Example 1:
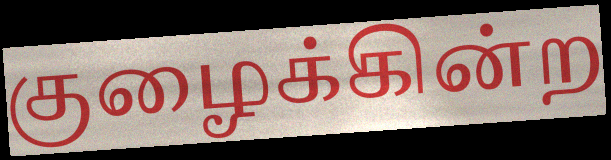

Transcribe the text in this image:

குழைக்கின்ற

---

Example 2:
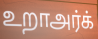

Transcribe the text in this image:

உறாஅர்க்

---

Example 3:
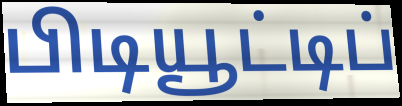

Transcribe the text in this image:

பிடியூட்டிப்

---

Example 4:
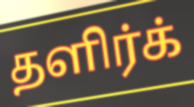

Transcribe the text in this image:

தளிர்க்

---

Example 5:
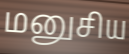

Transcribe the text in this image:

மனுசிய